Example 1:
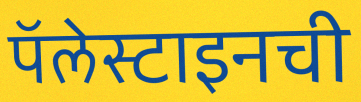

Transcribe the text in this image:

पॅलेस्टाइनची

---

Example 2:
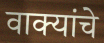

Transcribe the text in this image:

वाक्यांचे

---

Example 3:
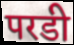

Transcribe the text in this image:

परडी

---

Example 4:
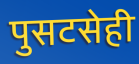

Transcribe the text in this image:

पुसटसेही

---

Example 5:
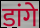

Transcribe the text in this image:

डांगे